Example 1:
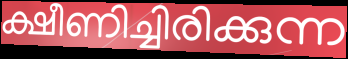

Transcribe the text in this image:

ക്ഷീണിച്ചിരിക്കുന്ന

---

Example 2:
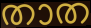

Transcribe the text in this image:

താത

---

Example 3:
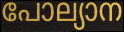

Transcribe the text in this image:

പോല്യാന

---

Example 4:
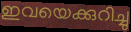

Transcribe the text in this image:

ഇവയെക്കുറിച്ചു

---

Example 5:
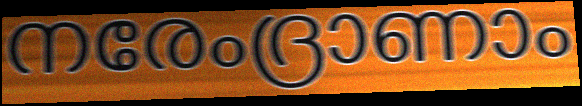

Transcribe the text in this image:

നരേംദ്രാണാം